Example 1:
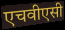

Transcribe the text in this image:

एचवीएसी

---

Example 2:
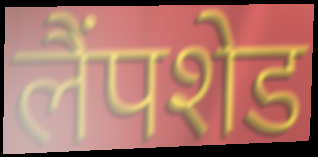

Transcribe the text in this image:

लैंपशेड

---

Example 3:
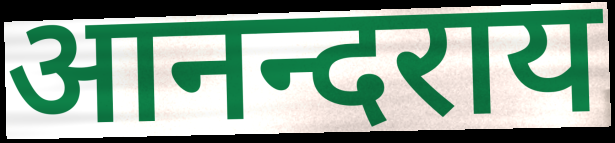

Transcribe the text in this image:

आनन्दराय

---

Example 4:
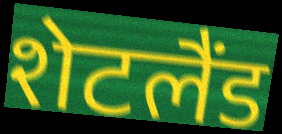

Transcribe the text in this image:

शेटलैंड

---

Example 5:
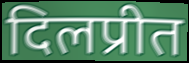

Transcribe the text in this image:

दिलप्रीत